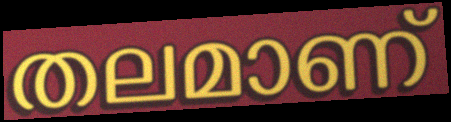
തലമാണ്